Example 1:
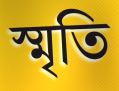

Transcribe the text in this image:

স্মৃতি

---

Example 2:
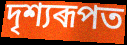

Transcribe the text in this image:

দৃশ্যৰূপত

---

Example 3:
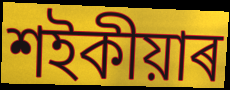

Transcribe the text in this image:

শইকীয়াৰ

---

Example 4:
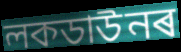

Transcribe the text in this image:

লকডাউনৰ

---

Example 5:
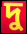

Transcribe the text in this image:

দু